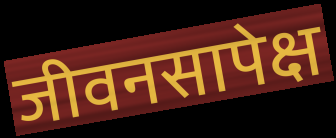
जीवनसापेक्ष